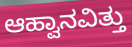
ಆಹ್ವಾನವಿತ್ತು